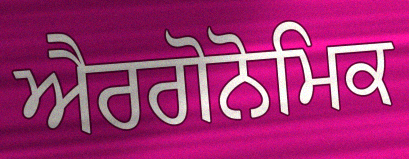
ਐਰਗੋਨੋਮਿਕ